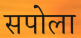
सपोला